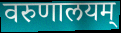
वरुणालयम्